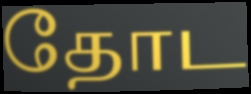
தோட